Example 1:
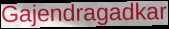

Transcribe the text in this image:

Gajendragadkar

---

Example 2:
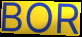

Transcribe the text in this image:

BOR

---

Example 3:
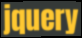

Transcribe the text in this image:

jquery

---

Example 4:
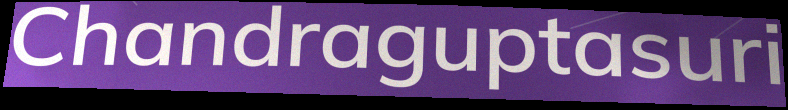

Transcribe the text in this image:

Chandraguptasuri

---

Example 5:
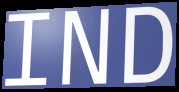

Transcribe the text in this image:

IND